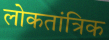
लोकतांत्रिक